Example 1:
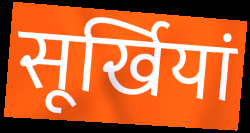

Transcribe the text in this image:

सूर्खियां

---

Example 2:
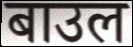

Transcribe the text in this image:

बाउल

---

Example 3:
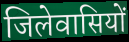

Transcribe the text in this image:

जिलेवासियों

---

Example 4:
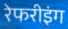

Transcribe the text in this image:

रेफरीइंग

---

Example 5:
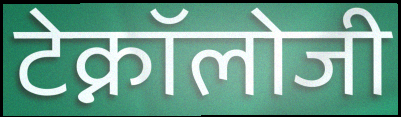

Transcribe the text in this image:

टेक्नॉलोजी